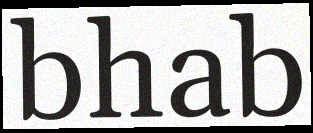
bhab